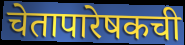
चेतापारेषकची